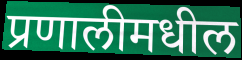
प्रणालीमधील